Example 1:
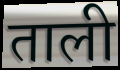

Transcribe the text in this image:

ताली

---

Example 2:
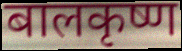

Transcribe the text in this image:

बालकृष्ण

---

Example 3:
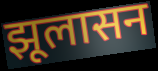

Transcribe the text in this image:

झूलासन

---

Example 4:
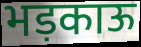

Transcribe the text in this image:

भड़काऊ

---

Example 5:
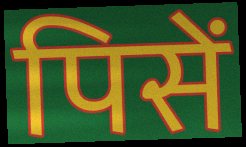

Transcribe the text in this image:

पिसें